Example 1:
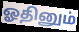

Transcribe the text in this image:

ஓதினும்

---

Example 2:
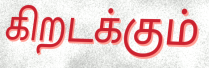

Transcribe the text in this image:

கிறடக்கும்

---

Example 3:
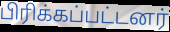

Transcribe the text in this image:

பிரிக்கப்பட்டனர்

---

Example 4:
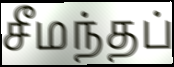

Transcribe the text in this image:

சீமந்தப்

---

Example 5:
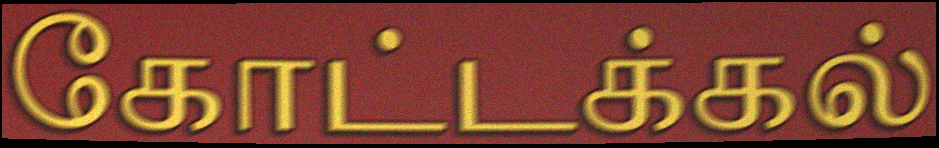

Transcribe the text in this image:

கோட்டக்கல்